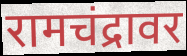
रामचंद्रावर